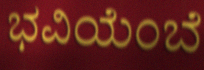
ಭವಿಯೆಂಬೆ